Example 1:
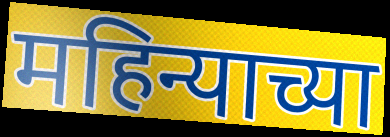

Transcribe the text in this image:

महिन्याच्या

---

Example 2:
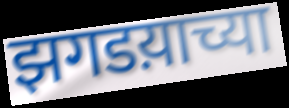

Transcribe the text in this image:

झगडय़ाच्या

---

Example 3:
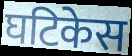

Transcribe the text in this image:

घटिकेस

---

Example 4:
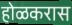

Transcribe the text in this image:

होळकरास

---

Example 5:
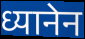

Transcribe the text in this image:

ध्यानेन